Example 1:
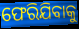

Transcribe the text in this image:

ଫେରିଯିବାକୁ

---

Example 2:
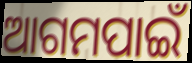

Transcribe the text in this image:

ଆଗମପାଇଁ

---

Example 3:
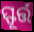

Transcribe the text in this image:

ସ୍ଫୂର୍ତ୍ତ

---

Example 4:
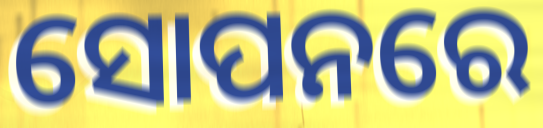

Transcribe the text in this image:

ସୋପନରେ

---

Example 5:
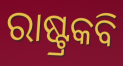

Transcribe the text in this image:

ରାଷ୍ଟ୍ରକବି